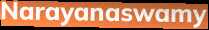
Narayanaswamy